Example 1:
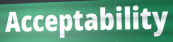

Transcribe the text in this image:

Acceptability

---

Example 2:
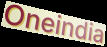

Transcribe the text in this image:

Oneindia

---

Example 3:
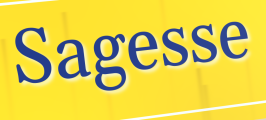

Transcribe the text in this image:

Sagesse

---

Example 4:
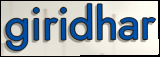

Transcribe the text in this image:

giridhar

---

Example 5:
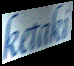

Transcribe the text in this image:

ketaki